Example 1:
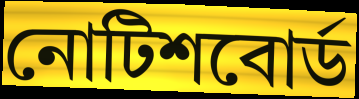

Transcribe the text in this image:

নোটিশবোর্ড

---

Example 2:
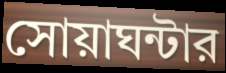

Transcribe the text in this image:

সোয়াঘন্টার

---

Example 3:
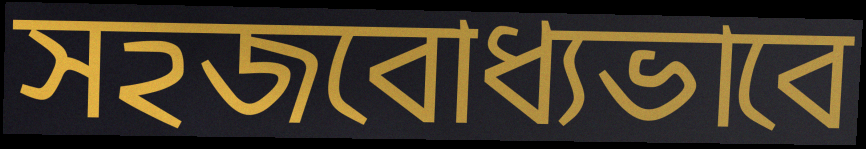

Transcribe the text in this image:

সহজবোধ্যভাবে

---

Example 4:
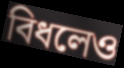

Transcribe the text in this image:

বিধলেও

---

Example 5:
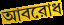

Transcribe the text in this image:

আবরোধ